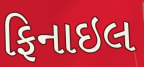
ફિનાઇલ